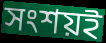
সংশয়ই